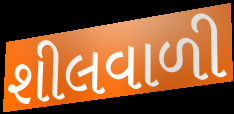
શીલવાળી